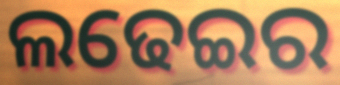
ଲଢେଇର